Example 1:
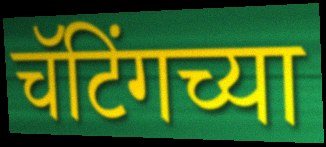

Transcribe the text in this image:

चॅटिंगच्या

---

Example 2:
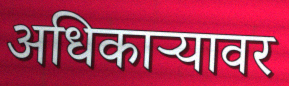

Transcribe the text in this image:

अधिकार्‍यावर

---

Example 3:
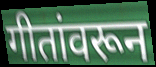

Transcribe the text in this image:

गीतांवरून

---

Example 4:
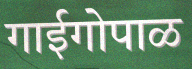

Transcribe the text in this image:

गाईगोपाळ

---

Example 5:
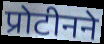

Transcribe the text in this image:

प्रोटीनने